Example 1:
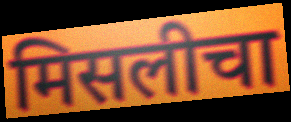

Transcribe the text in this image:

मिसलीचा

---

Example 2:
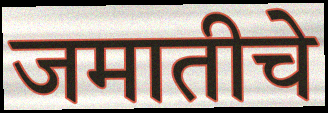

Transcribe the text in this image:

जमातीचे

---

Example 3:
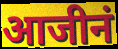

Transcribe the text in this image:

आजीनं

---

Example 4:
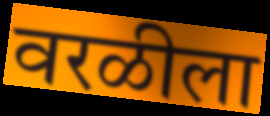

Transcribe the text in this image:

वरळीला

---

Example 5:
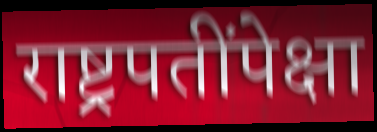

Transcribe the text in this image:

राष्ट्रपतींपेक्षा